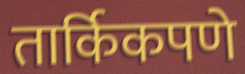
तार्किकपणे